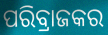
ପରିବ୍ରାଜକର